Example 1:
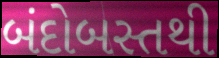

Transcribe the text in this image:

બંદોબસ્તથી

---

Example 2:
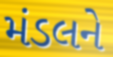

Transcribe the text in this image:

મંડલને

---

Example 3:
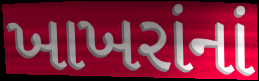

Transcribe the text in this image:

ખાખરાંનાં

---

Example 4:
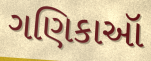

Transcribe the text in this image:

ગણિકાઑ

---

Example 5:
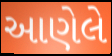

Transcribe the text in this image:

આણેલે